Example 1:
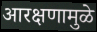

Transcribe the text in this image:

आरक्षणामुळे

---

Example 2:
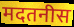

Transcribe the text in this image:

मदतनीस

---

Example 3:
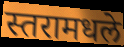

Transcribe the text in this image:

स्तरामधले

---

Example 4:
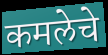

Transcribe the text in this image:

कमलेचे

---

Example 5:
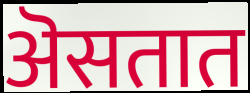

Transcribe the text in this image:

ऄसतात